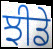
ਝੀਡੇ